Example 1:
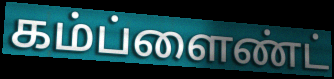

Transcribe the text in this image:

கம்ப்ளைண்ட்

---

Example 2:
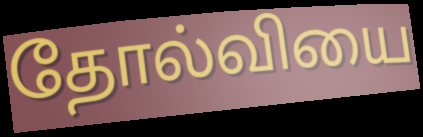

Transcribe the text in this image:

தோல்வியை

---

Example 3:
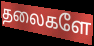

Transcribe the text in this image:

தலைகளே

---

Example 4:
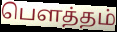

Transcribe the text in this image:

பௌத்தம்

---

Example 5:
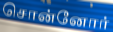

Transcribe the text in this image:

சொன்னோர்